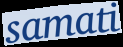
samati